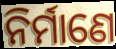
ନିର୍ମାଣେ